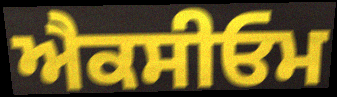
ਐਕਸੀਓਮ